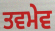
ਤਵਮੇਵ